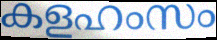
കളഹംസം